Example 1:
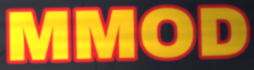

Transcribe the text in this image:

MMOD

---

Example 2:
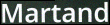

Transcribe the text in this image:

Martand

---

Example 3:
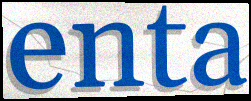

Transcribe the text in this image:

enta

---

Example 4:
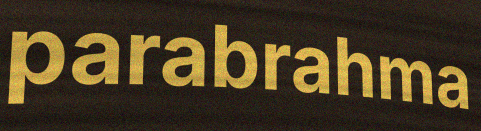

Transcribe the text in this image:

parabrahma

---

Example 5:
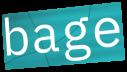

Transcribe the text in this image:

bage